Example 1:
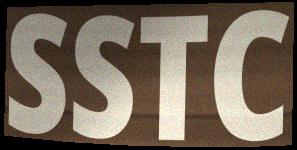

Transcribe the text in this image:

SSTC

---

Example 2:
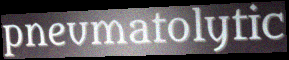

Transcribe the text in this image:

pneumatolytic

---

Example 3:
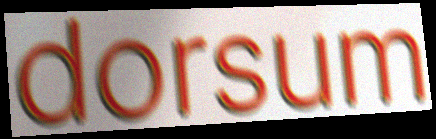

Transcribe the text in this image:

dorsum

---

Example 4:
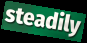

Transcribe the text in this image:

steadily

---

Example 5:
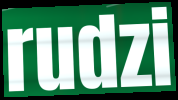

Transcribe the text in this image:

rudzi